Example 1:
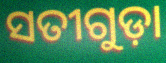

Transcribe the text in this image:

ସତୀଗୁଡ଼ା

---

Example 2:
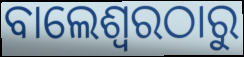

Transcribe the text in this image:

ବାଲେଶ୍ବରଠାରୁ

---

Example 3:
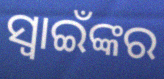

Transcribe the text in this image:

ସ୍ଵାଇଁଙ୍କର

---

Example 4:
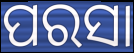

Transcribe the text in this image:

ପରସା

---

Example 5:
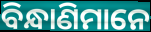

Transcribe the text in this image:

ବିନ୍ଧାଣିମାନେ